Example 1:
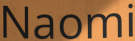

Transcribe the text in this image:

Naomi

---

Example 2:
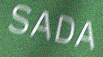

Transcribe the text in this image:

SADA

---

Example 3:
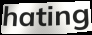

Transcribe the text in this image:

hating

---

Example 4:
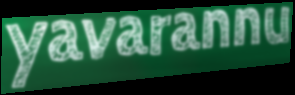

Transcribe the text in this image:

yavarannu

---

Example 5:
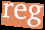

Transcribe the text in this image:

reg